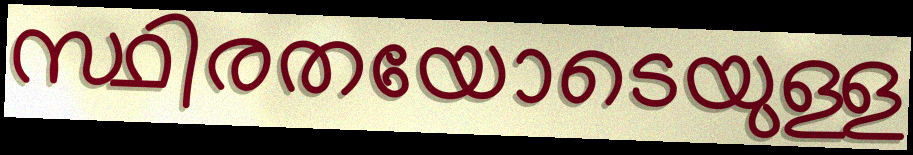
സ്ഥിരതയോടെയുള്ള